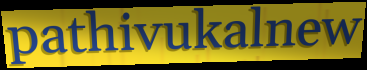
pathivukalnew